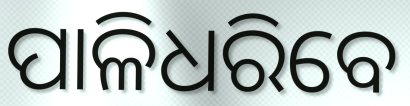
ପାଳିଧରିବେ